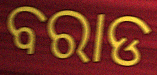
ବରାଡ